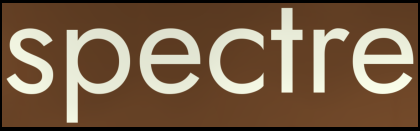
spectre